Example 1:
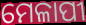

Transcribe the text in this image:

ମେଳାପୀ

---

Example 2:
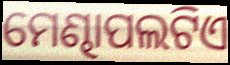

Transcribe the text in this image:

ମେଣ୍ଢାପଲଟିଏ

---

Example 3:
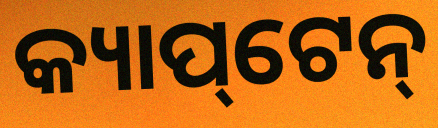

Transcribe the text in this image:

କ୍ୟାପ୍‌ଟେନ୍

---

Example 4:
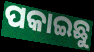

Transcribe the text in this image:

ପକାଇଛୁ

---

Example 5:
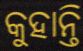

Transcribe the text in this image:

କୁହାନ୍ତି